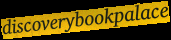
discoverybookpalace